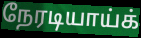
நேரடியாய்க்